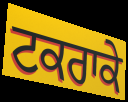
ਟਕਰਾਕੇ